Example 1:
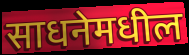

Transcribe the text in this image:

साधनेमधील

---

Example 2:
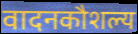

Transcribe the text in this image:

वादनकौशल्य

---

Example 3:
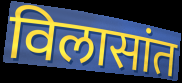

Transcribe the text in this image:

विलासांत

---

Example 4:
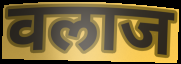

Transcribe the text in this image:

वलाज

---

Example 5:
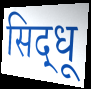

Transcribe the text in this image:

सिद्धू